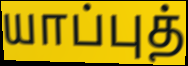
யாப்புத்